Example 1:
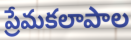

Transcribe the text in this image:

ప్రేమకలాపాల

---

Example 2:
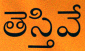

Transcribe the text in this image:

తెస్తివే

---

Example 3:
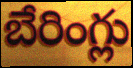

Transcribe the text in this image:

బేరింగ్లు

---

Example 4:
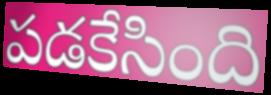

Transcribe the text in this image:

పడకేసింది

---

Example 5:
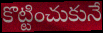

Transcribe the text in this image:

కొట్టించుకునే